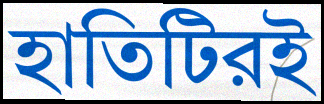
হাতিটিরই